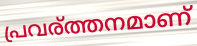
പ്രവര്ത്തനമാണ്